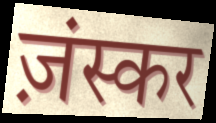
ज़ंस्कर